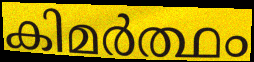
കിമർത്ഥം